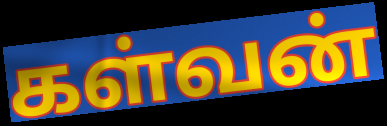
கள்வன்